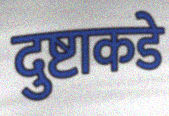
दुष्टाकडे